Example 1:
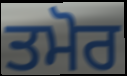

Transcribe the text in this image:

ਤਮੋਰ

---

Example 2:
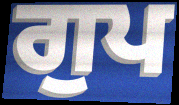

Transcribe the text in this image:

ਗੁਪ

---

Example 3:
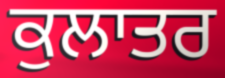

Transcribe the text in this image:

ਕੁਲਾਤਰ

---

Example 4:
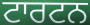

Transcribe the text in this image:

ਟਾਰਟਨ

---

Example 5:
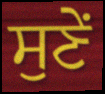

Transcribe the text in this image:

ਸੁਣੇਂ